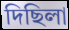
দিছিলা